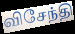
விசேந்தி